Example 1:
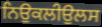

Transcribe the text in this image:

ਨਿਉਕਲੀਉਲਸ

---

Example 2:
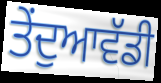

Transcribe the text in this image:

ਤੇਂਦੁਆਵੱਡੀ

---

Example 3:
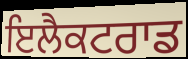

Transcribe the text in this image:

ਇਲੈਕਟਰਾਡ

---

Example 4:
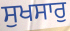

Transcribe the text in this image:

ਸੁਖਸਾਰੁ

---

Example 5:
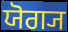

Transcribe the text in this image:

ਯੋਗ੍ਯ